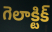
గెలాక్టిక్